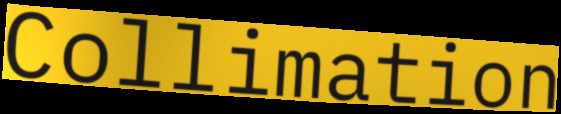
Collimation